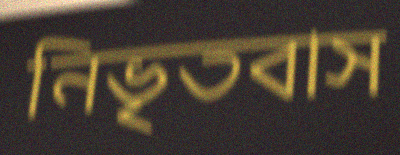
নিভৃতবাস